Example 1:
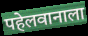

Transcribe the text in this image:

पहेलवानाला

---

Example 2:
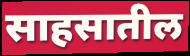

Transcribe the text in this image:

साहसातील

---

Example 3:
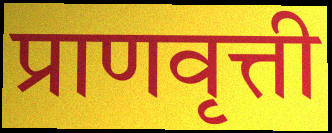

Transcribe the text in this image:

प्राणवृत्ती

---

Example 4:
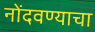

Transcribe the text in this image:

नोंदवण्याचा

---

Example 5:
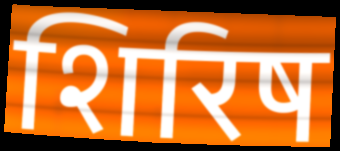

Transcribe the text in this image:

शिरिष